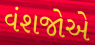
વંશજોએ